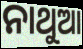
ନାଥୁଆ